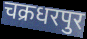
चक्रधरपुर